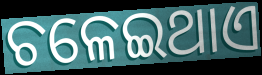
ଚଳେଇଥାଏ